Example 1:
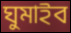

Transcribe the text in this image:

ঘুমাইব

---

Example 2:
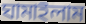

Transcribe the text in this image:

ঘামাইলাম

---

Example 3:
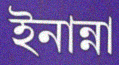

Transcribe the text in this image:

ইনান্না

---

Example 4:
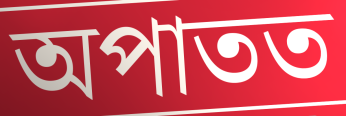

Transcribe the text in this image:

অপাতত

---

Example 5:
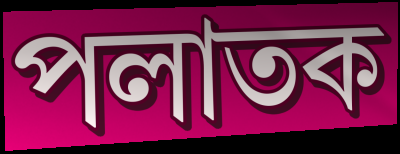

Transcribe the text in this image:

পলাতক